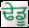
ਢੇਡੂ